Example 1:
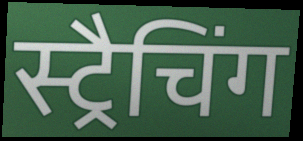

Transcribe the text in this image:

स्ट्रैचिंग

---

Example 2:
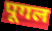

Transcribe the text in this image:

पूगल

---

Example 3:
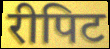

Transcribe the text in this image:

रीपिट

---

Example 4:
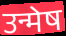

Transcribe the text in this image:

उन्मेष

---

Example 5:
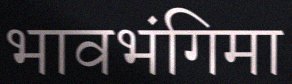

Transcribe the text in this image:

भावभंगिमा